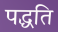
पद्धति